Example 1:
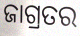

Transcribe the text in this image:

ଜାଗ୍ରତର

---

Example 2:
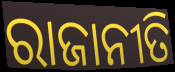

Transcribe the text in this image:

ରାଜାନୀତି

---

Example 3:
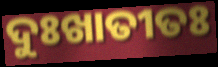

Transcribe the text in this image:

ଦୁଃଖାତୀତଃ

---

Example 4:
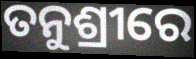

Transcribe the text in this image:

ତନୁଶ୍ରୀରେ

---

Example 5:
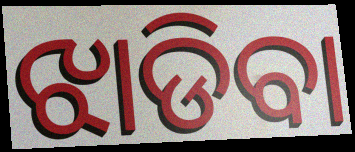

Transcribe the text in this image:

ଝାଡିବା